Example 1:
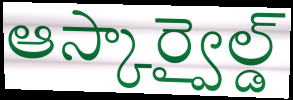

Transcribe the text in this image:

ఆస్కార్వైల్డ్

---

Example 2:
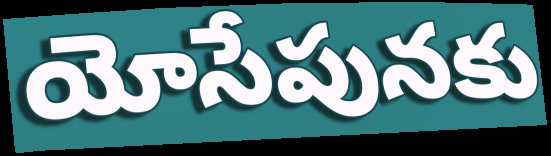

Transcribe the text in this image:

యోసేపునకు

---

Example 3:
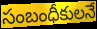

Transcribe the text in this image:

సంబంధీకులనే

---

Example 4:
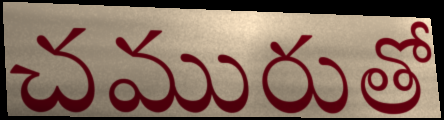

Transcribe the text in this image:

చమురుతో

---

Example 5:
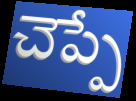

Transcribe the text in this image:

చెప్పే